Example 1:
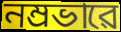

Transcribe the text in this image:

নম্ৰভাৱে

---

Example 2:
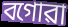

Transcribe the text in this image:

বগোৱা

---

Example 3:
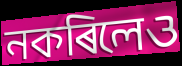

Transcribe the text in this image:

নকৰিলেও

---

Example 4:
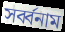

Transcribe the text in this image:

সৰ্ব্বনাম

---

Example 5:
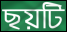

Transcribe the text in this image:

ছয়টি